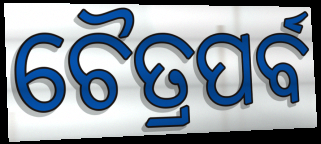
ଚୈତ୍ରପର୍ବ